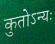
कुतोऽन्यः